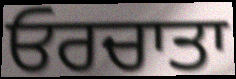
ਓਰਚਾਤਾ